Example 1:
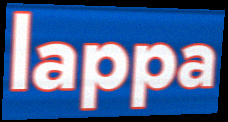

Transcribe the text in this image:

lappa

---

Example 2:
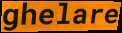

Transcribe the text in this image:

ghelare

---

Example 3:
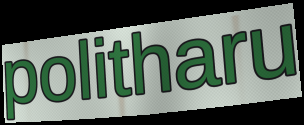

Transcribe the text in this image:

politharu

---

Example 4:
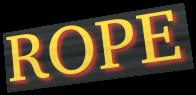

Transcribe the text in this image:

ROPE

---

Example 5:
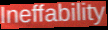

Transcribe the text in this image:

Ineffability